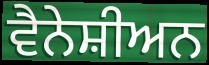
ਵੈਨੇਸ਼ੀਅਨ